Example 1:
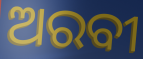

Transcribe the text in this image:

ଅରବୀ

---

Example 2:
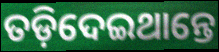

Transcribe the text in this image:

ତଡ଼ିଦେଇଥାନ୍ତେ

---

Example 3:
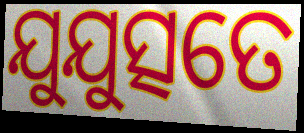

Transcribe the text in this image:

ଯୁଯୁତ୍ସତେ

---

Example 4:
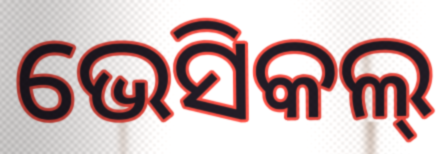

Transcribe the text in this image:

ଭେସିକଲ୍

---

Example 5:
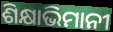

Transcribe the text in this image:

ଶିକ୍ଷାଭିମାନୀ